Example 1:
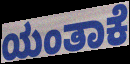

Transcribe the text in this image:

ಯಂತಾಕೆ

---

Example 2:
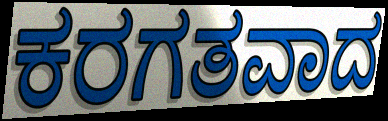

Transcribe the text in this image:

ಕರಗತವಾದ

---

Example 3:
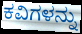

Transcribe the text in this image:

ಕವಿಗಳನ್ನು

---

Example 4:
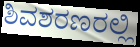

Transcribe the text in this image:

ಶಿವಶರಣರಲ್ಲಿ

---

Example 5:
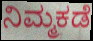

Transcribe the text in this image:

ನಿಮ್ಮಕಡೆ